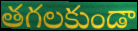
తగలకుండా